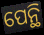
ପେନ୍ଥି